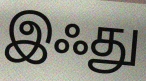
இஃது